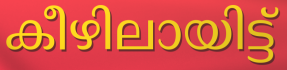
കീഴിലായിട്ട്